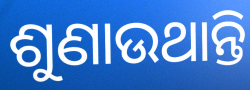
ଶୁଣାଉଥାନ୍ତି